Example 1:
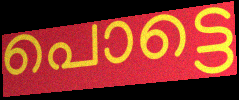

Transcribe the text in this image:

പൊട്ടെ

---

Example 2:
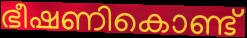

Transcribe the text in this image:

ഭീഷണികൊണ്ട്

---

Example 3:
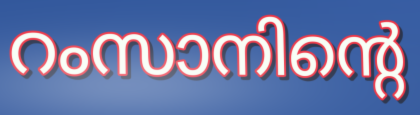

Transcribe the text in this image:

റംസാനിന്റെ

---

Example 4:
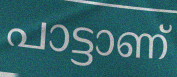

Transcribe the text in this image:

പാട്ടാണ്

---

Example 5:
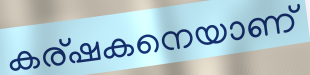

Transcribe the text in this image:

കര്ഷകനെയാണ്